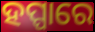
ହପ୍ପାରେ